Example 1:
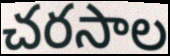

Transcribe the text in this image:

చరసాల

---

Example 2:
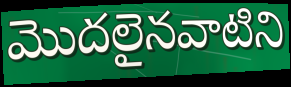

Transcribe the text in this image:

మొదలైనవాటిని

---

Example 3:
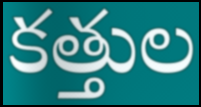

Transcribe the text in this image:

కత్తుల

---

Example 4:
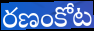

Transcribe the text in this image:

రణంకోట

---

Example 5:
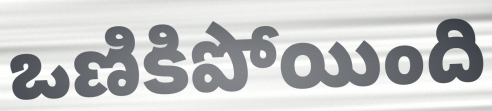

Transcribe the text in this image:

ఒణికిపోయింది